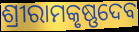
ଶ୍ରୀରାମକୃଷ୍ଣଦେବ